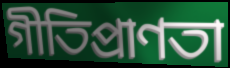
গীতিপ্রাণতা